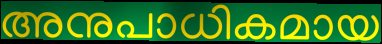
അനുപാധികമായ